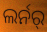
ଲର୍ନର୍